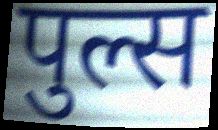
पुल्स